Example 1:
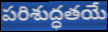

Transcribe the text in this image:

పరిశుద్ధతయే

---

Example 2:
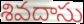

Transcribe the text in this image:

శివదాసు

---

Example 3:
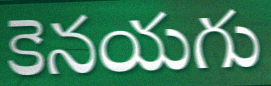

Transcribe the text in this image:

కెనయగు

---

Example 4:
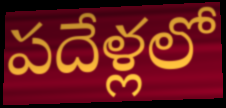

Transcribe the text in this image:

పదేళ్లలో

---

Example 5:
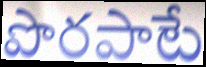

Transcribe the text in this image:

పొరపాటే